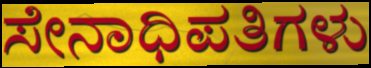
ಸೇನಾಧಿಪತಿಗಳು